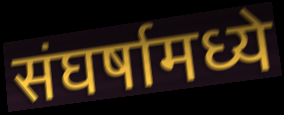
संघर्षामध्ये